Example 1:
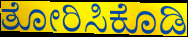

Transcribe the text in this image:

ತೋರಿಸಿಕೊಡಿ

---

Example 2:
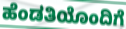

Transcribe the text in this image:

ಹೆಂಡತಿಯೊಂದಿಗೆ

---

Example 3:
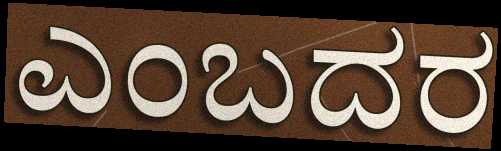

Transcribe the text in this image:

ಎಂಬದರ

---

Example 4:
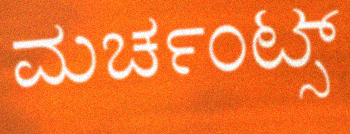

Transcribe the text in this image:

ಮರ್ಚಂಟ್ಸ್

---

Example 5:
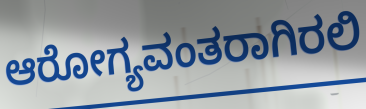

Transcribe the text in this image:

ಆರೋಗ್ಯವಂತರಾಗಿರಲಿ